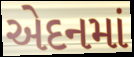
એદનમાં